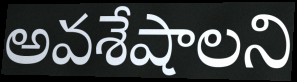
అవశేషాలని